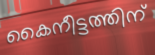
കൈനീട്ടത്തിന്